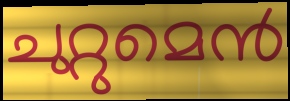
ചുറ്റുമെൻ